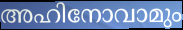
അഹിനോവാമും